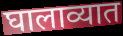
घालाव्यात